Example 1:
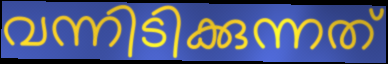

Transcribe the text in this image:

വന്നിടിക്കുന്നത്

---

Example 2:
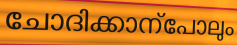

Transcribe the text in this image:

ചോദിക്കാന്പോലും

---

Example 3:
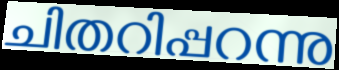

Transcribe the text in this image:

ചിതറിപ്പറന്നു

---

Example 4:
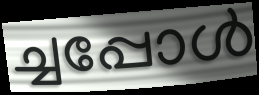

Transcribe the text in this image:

ച്ചപ്പോൾ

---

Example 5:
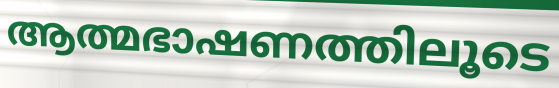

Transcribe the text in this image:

ആത്മഭാഷണത്തിലൂടെ